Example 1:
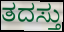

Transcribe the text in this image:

ತದಸ್ತು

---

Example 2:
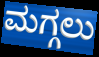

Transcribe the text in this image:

ಮಗ್ಗಲು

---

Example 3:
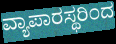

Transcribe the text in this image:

ವ್ಯಾಪಾರಸ್ಥರಿಂದ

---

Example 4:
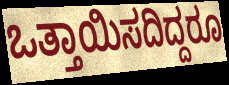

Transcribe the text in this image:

ಒತ್ತಾಯಿಸದಿದ್ದರೂ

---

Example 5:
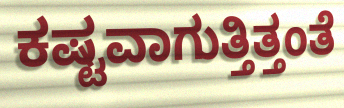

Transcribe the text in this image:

ಕಷ್ಟವಾಗುತ್ತಿತ್ತಂತೆ